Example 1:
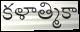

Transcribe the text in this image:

కళాత్మికా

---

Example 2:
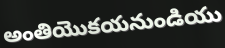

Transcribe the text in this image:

అంతియొకయనుండియు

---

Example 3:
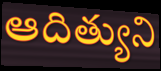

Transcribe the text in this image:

ఆదిత్యుని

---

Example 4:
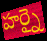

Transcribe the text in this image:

హర్నై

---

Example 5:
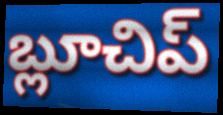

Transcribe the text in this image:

బ్లూచిప్